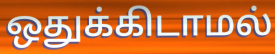
ஒதுக்கிடாமல்